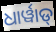
ଧାର୍ୱାଡ୍